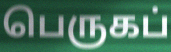
பெருகப்